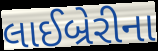
લાઈબ્રેરીના